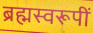
ब्रह्मस्वरूपीं